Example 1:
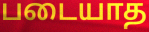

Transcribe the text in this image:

படையாத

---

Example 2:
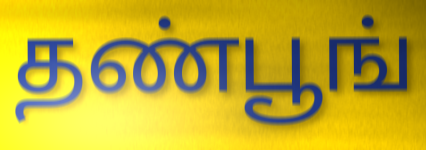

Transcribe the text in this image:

தண்பூங்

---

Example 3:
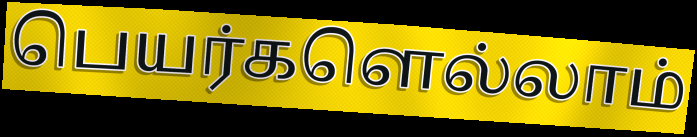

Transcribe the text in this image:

பெயர்களெல்லாம்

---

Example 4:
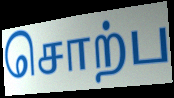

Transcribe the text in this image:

சொற்ப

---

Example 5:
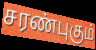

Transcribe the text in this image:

சரண்புகும்